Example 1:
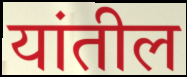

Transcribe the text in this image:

यांतील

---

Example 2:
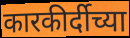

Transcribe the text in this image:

कारकीर्दीच्या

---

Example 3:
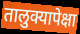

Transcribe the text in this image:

तालुक्यापेक्षा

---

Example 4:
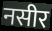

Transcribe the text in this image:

नसीर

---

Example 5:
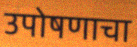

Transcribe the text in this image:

उपोषणाचा